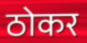
ठोकर